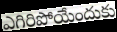
ఎగిరిపోయేందుకు